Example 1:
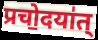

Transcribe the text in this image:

प्रचो॒दया॑त्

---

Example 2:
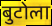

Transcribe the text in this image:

बुटोला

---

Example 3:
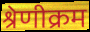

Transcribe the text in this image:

श्रेणीक्रम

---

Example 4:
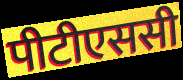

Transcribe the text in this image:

पीटीएससी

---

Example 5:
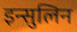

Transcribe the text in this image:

इन्सुलिन